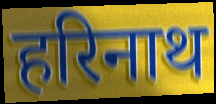
हरिनाथ